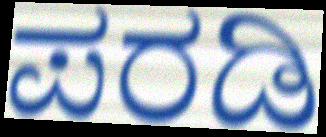
ಪರಡಿ